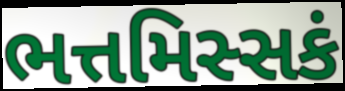
ભત્તમિસ્સકં